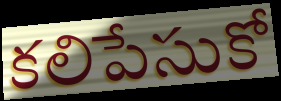
కలిపేసుకో